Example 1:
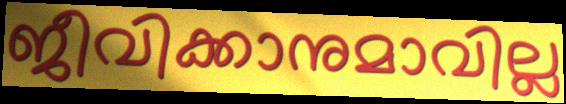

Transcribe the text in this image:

ജീവിക്കാനുമാവില്ല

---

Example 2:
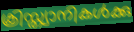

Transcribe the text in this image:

ക്രിസ്ത്യാനികൾക്കു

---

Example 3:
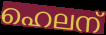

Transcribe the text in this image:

ഹെലന്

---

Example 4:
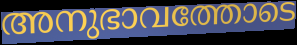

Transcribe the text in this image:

അനുഭാവത്തോടെ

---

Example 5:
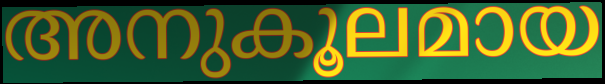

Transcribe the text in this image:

അനുകൂലമായ